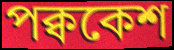
পক্বকেশ